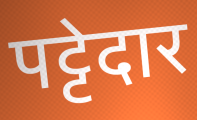
पट्टेदार